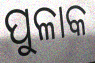
ପୁଳାକ